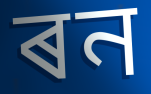
ৰন